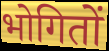
भोगितों